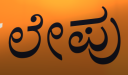
ಲೇಪು